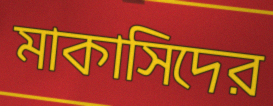
মাকাসিদের